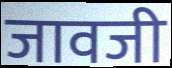
जावजी